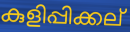
കുളിപ്പിക്കല്